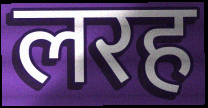
लरह